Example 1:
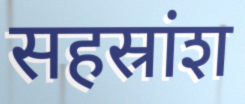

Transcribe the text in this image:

सहस्रांश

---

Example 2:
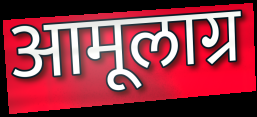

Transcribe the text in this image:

आमूलाग्र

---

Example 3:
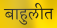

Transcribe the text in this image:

बाहुलीत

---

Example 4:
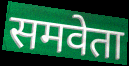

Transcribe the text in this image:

समवेता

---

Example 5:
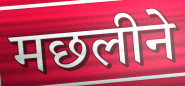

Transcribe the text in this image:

मछलीने